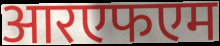
आरएफएम